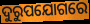
ଦୁରୁପଯୋଗରେ